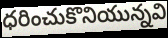
ధరించుకొనియున్నవి